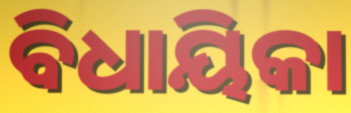
ବିଧାୟିକା